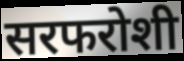
सरफरोशी